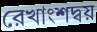
রেখাংশদ্বয়